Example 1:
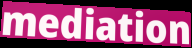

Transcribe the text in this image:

mediation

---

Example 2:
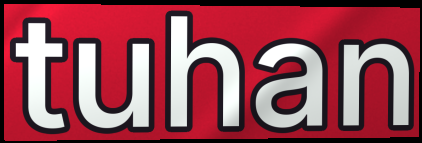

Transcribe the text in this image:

tuhan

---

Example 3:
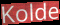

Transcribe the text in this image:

Kolde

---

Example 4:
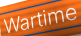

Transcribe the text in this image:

Wartime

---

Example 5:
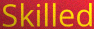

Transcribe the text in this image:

Skilled